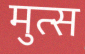
मुत्स